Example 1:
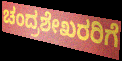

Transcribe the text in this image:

ಚಂದ್ರಶೇಖರರಿಗೆ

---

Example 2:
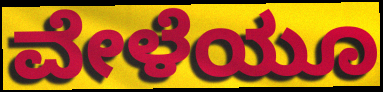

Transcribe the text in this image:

ವೇಳೆಯೂ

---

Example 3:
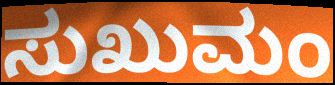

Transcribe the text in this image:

ಸುಖುಮಂ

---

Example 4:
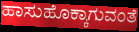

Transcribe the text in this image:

ಹಾಸುಹೊಕ್ಕಾಗುವಂತೆ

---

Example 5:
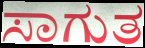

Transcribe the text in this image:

ಸಾಗುತ